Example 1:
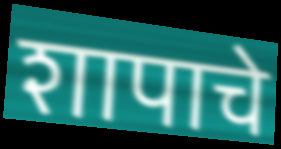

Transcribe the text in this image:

शापाचे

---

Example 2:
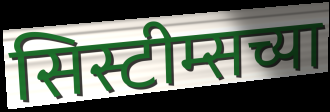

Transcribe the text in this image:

सिस्टीम्सच्या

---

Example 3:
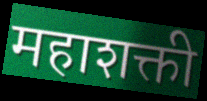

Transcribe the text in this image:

महाशक्ती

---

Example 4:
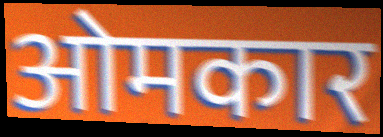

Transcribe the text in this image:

ओमकार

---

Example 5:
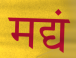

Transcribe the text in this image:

मद्यं